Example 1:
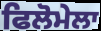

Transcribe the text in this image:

ਫਿਲੋਮੇਲਾ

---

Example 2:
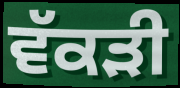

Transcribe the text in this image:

ਵੱਕੜੀ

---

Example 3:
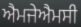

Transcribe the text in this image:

ਐਮਜੇਐਮਸੀ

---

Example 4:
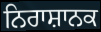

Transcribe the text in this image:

ਨਿਰਾਸ਼ਾਨਕ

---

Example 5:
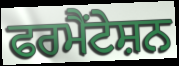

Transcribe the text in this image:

ਫਰਮੈਂਟੇਸ਼ਨ